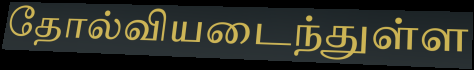
தோல்வியடைந்துள்ள